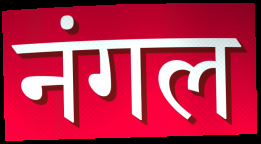
नंगल